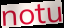
notu